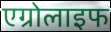
एग्रोलाइफ